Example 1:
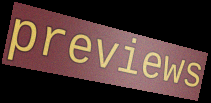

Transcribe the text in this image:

previews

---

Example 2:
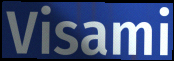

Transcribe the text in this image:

Visami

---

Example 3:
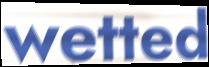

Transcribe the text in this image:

wetted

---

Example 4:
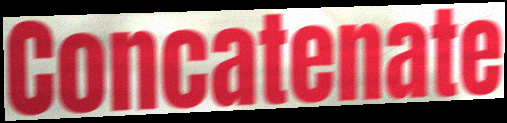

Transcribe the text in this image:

Concatenate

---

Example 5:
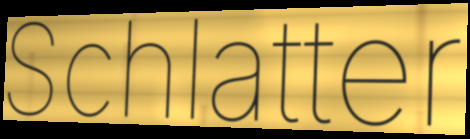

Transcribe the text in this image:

Schlatter